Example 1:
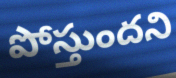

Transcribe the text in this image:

పోస్తుందని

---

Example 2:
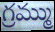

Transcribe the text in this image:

గ్రమ్ము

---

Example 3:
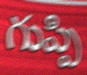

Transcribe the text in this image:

గుప్పి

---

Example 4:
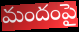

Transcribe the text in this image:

మందంపై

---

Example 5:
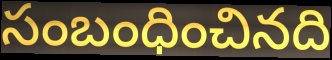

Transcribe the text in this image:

సంబంధించినది